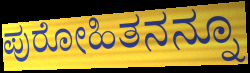
ಪುರೋಹಿತನನ್ನೂ